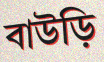
বাউড়ি